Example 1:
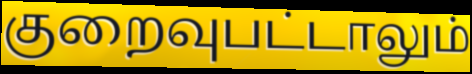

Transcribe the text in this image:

குறைவுபட்டாலும்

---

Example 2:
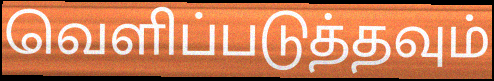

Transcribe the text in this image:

வெளிப்படுத்தவும்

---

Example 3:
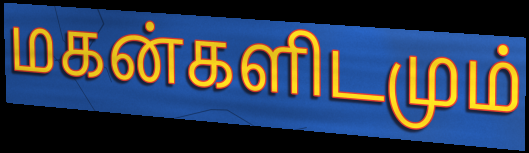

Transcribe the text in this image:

மகன்களிடமும்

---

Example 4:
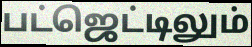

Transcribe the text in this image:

பட்ஜெட்டிலும்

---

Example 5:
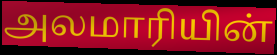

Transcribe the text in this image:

அலமாரியின்